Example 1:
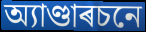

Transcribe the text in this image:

অ্যাণ্ডাৰচনে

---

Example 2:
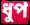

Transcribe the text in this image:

ধুপ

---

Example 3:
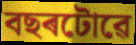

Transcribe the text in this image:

বছৰটোৱে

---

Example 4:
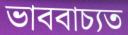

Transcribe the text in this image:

ভাববাচ্যত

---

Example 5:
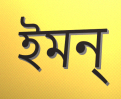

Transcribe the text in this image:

ইমন্